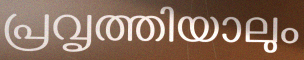
പ്രവൃത്തിയാലും